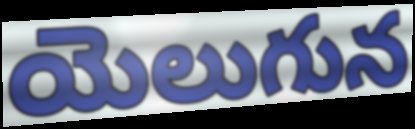
యెలుగున